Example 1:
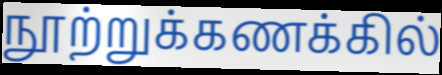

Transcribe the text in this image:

நூற்றுக்கணக்கில்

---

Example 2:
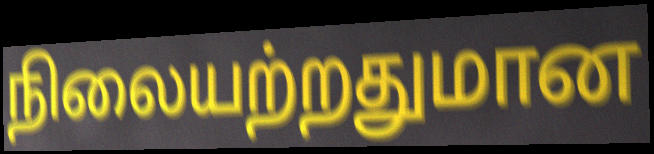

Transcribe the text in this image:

நிலையற்றதுமான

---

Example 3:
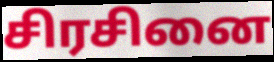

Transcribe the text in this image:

சிரசினை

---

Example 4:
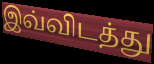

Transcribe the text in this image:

இவ்விடத்து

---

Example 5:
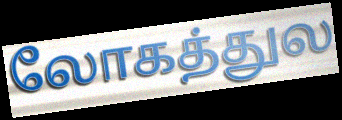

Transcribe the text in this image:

லோகத்துல